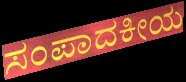
ಸಂಪಾದಕೀಯ